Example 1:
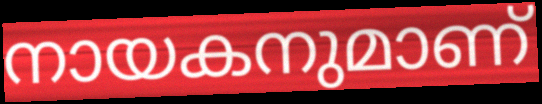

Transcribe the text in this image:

നായകനുമാണ്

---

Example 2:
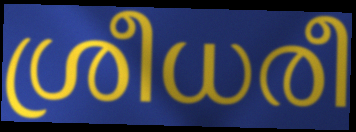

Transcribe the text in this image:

ശ്രീധരീ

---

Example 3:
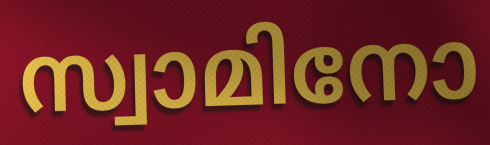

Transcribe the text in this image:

സ്വാമിനോ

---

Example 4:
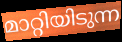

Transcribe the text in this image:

മാറ്റിയിടുന്ന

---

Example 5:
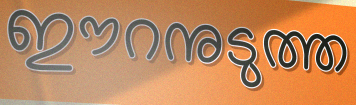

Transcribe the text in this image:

ഈറനുടുത്ത